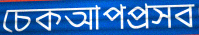
চেকআপপ্রসব